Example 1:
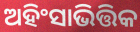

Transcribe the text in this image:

ଅହିଂସାଭିତ୍ତିକ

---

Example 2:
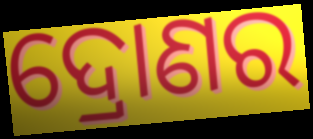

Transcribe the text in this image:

ଦ୍ରୋଣର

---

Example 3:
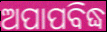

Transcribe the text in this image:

ଅପାପବିଦ୍ଧ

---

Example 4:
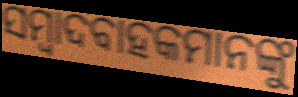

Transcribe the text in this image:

ସମ୍ବାଦବାହକମାନଙ୍କୁ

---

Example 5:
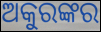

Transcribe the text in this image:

ଅକୁରଙ୍କର